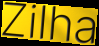
Zilha